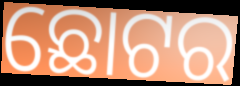
ଛୋଟର